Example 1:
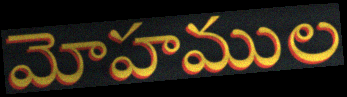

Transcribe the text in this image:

మోహముల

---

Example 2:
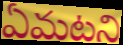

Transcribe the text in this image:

ఏమటని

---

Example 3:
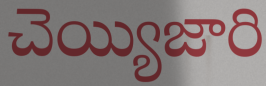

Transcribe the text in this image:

చెయ్యిజారి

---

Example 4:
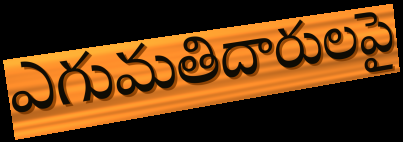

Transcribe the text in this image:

ఎగుమతిదారులపై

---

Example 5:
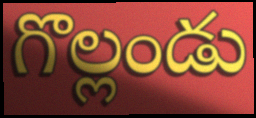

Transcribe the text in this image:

గొల్లండు